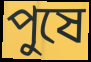
পুষে